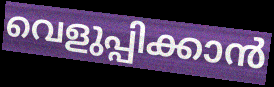
വെളുപ്പിക്കാൻ